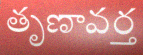
తృణావర్త